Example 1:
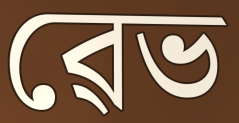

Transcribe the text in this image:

ৱেভ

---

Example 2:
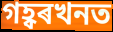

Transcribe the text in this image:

গহ্বৰখনত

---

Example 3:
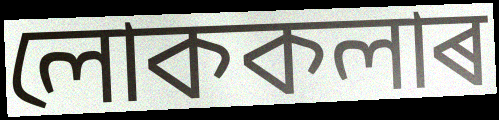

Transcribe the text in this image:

লোককলাৰ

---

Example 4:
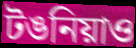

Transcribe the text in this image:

টঙনিয়াও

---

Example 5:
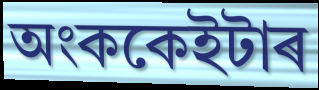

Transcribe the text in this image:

অংককেইটাৰ